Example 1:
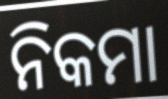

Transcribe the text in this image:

ନିକମା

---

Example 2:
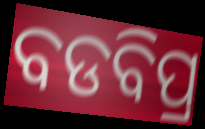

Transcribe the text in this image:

ବଡବିପ୍ର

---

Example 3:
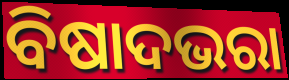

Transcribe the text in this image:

ବିଷାଦଭରା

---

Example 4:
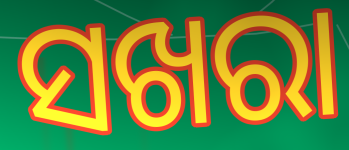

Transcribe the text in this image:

ସଖରା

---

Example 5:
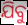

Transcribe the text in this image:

ଯିବୁ